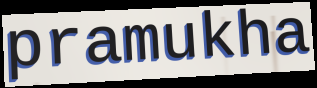
pramukha